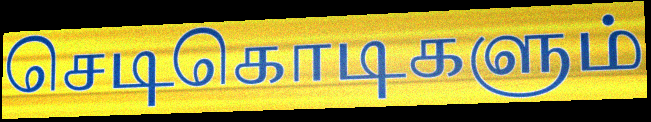
செடிகொடிகளும்